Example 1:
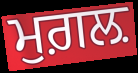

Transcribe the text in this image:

ਮੁਗ਼ਲ਼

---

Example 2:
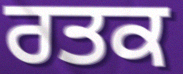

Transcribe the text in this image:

ਰਤਕ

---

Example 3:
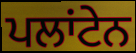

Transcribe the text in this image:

ਪਲਾਂਟੇਨ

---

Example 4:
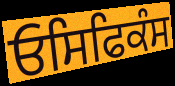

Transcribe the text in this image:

ਓਸਿਫਿਕੰਸ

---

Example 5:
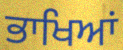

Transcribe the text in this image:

ਭਾਖਿਆਂ